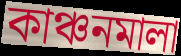
কাঞ্চনমালা